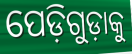
ପେଡ଼ିଗୁଡ଼ାକୁ